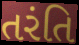
તરંતિ